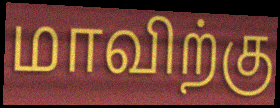
மாவிற்கு